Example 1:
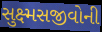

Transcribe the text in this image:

સુક્ષ્મસજીવોની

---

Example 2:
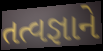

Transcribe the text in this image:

તત્વજ્ઞાને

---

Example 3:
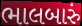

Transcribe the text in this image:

ભાલબારું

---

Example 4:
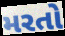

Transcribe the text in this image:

મરતો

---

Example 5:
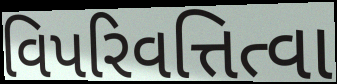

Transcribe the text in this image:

વિપરિવત્તિત્વા